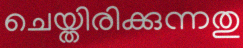
ചെയ്തിരിക്കുന്നതു